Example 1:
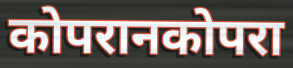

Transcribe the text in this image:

कोपरानकोपरा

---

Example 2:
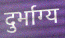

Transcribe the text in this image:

दुर्भाग्य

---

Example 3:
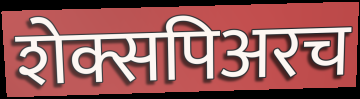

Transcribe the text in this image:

शेक्सपिअरच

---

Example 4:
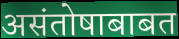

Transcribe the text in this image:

असंतोषाबाबत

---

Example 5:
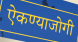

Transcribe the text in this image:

ऐकण्याजोगी